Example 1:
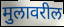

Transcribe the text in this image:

मुलावरील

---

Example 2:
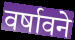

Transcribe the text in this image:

वर्षावने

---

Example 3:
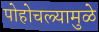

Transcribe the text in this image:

पोहोचल्यामुळे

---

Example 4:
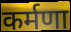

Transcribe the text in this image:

कर्मणा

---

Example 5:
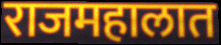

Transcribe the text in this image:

राजमहालात